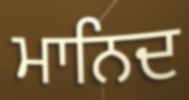
ਮਾਨਿਦ